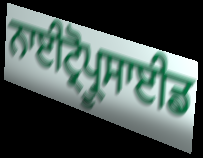
ਨਾਈਟ੍ਰੋਪ੍ਰੂਸਾਈਡ